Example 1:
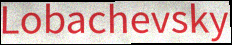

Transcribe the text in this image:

Lobachevsky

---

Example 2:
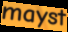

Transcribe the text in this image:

mayst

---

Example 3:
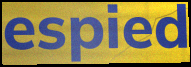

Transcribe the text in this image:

espied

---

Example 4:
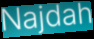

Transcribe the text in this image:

Najdah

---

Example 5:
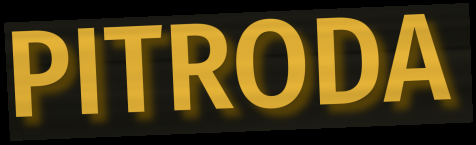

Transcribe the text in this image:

PITRODA